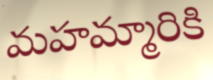
మహమ్మారికి